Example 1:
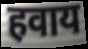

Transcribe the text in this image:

हवाय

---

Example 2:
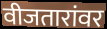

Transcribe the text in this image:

वीजतारांवर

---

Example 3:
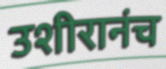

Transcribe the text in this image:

उशीरानंच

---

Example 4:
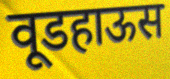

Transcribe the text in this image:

वूडहाऊस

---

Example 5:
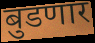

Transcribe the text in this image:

बुडणार